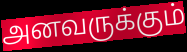
அனவருக்கும்